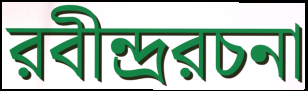
রবীন্দ্ররচনা